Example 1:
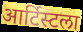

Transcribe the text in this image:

आर्टिस्टला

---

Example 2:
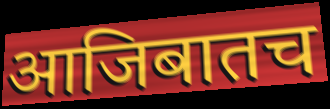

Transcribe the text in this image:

आजिबातच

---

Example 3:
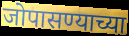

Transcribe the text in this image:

जोपासण्याच्या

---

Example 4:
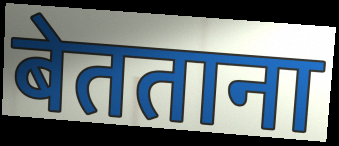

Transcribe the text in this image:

बेतताना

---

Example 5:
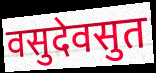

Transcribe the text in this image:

वसुदेवसुत